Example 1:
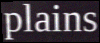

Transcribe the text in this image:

plains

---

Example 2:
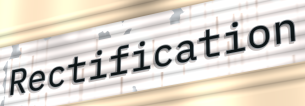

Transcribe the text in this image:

Rectification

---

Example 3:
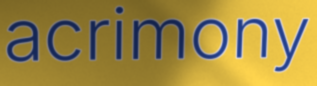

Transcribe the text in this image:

acrimony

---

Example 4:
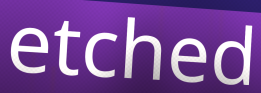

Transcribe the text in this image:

etched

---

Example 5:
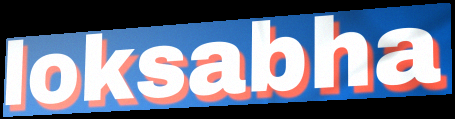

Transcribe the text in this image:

loksabha